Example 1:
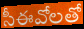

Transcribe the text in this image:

సీఈవోలతో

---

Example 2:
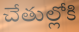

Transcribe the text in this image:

చేతుల్లోకి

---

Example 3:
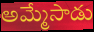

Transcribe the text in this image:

అమ్మేసాడు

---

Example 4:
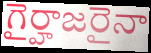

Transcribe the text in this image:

గైర్హాజరైనా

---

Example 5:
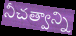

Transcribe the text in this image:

నీచత్వాన్ని